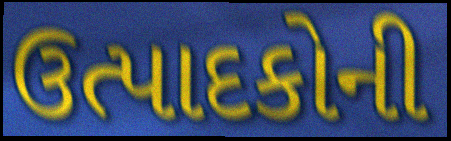
ઉત્પાદકોની